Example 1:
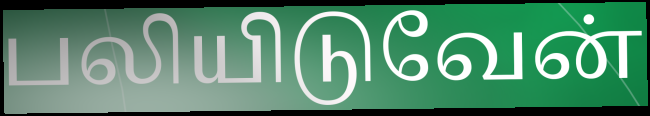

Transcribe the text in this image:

பலியிடுவேன்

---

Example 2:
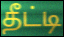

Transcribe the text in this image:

தீட்டி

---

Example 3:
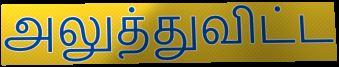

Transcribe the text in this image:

அலுத்துவிட்ட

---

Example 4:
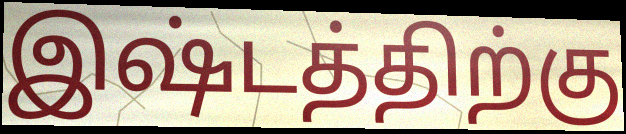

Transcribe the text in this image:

இஷ்டத்திற்கு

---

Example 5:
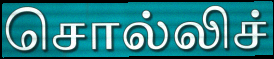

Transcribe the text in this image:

சொல்லிச்